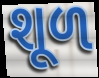
શૂળ